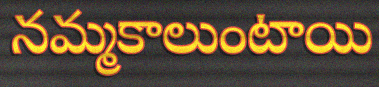
నమ్మకాలుంటాయి